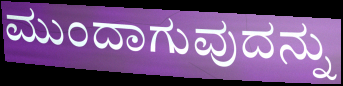
ಮುಂದಾಗುವುದನ್ನು